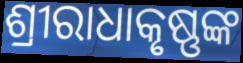
ଶ୍ରୀରାଧାକୃଷ୍ଣଙ୍କ